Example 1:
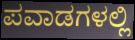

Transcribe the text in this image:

ಪವಾಡಗಳಲ್ಲಿ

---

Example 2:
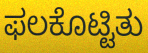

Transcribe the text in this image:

ಫಲಕೊಟ್ಟಿತು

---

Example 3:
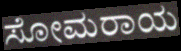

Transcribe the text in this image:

ಸೋಮರಾಯ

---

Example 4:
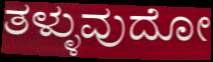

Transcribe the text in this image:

ತಳ್ಳುವುದೋ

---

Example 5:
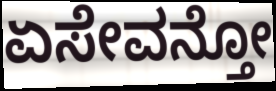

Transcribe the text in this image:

ಏಸೇವನ್ತೋ